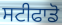
ਸਟੀਫਾਡੋ